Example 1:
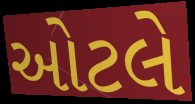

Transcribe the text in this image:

ઓટલે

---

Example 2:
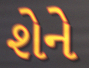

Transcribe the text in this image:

શેને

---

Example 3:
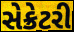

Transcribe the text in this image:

સેક્રેટરી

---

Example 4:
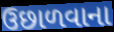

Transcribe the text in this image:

ઉછાળવાના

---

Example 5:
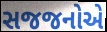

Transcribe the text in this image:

સજજનોએ